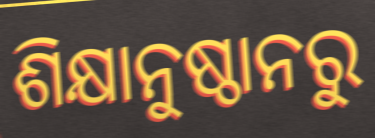
ଶିକ୍ଷାନୁଷ୍ଠାନରୁ